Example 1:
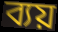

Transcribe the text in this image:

ব্যয়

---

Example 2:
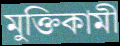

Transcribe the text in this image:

মুক্তিকামী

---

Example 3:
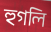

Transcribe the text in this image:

হুগলি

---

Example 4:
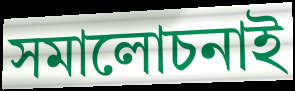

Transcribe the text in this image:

সমালোচনাই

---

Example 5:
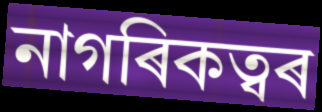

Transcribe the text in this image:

নাগৰিকত্বৰ